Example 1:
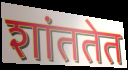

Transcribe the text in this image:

शांततेत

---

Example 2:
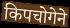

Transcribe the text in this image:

किपचोगेने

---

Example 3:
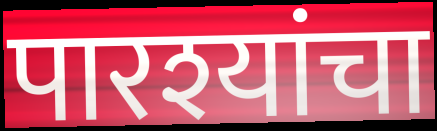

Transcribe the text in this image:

पारश्यांचा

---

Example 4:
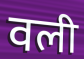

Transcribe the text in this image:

वली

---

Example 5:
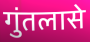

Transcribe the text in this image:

गुंतलासे